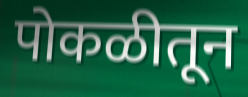
पोकळीतून